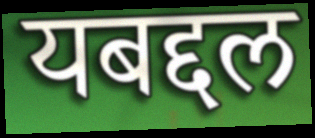
यबद्दल